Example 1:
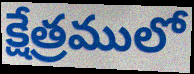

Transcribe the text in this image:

క్షేత్రములో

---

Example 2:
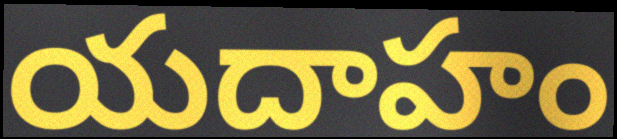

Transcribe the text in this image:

యదాహం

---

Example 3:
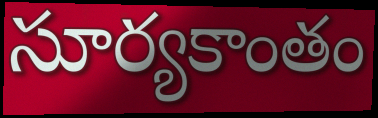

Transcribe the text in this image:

సూర్యకాంతం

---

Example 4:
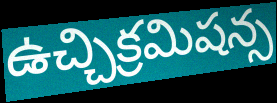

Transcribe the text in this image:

ఉచ్చిక్రమిషన్స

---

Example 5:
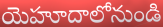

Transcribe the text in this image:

యెహూదాలోనుండి